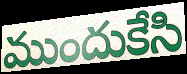
ముందుకేసి